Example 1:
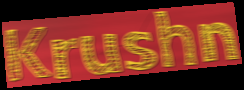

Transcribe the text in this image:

Krushn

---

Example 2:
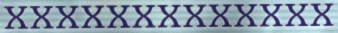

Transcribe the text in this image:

xxxxxxxxxxxxx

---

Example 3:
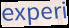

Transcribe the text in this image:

experi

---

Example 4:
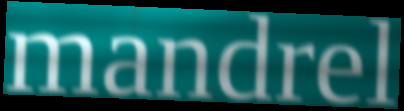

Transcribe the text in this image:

mandrel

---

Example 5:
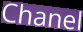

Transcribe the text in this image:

Chanel